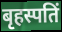
बृहस्पतिं